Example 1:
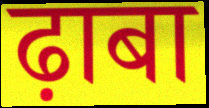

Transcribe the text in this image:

ढ़ाबा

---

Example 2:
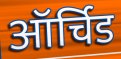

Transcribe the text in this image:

ऑर्चिड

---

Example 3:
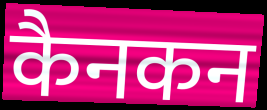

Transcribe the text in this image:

कैनकन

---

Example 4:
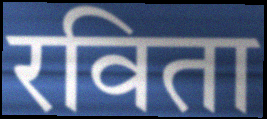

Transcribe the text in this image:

रविता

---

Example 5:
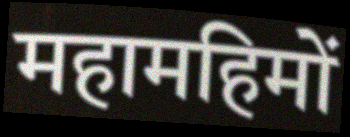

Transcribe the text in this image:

महामहिमों